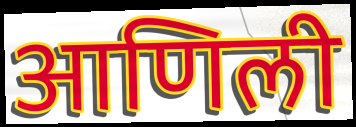
आणिली